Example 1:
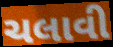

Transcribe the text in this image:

ચલાવી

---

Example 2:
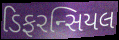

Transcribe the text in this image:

ડિફરન્સિયલ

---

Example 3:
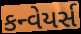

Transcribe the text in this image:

કન્વેયર્સ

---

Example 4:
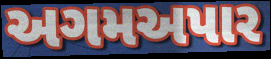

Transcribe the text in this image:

અગમઅપાર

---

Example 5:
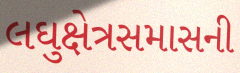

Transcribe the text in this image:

લઘુક્ષેત્રસમાસની